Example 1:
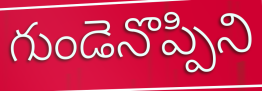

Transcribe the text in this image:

గుండెనొప్పిని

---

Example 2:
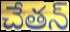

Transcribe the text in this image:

చేతన్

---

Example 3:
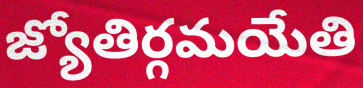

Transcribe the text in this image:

జ్యోతిర్గమయేతి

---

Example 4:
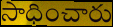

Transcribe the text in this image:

సాధించారు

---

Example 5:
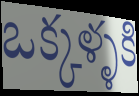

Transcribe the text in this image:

ఒక్కళ్ళకి